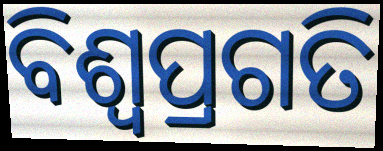
ବିଶ୍ବପ୍ରଗତି